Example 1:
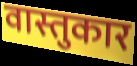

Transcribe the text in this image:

वास्तुकार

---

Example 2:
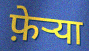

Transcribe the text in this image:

फ़ेर्‍या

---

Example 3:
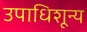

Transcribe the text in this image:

उपाधिशून्य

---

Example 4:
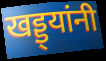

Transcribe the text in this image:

खड्ड्यांनी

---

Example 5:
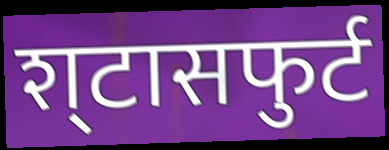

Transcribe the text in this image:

श्टासफुर्ट